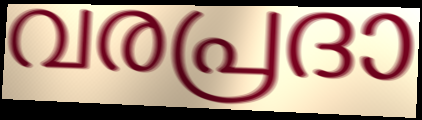
വരപ്രദാ